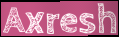
Axresh